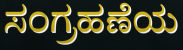
ಸಂಗ್ರಹಣೆಯ